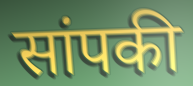
सांपकी